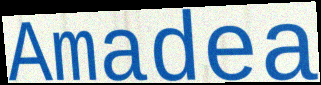
Amadea